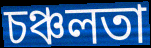
চঞ্চলতা